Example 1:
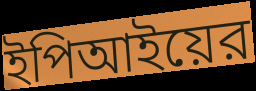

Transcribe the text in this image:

ইপিআইয়ের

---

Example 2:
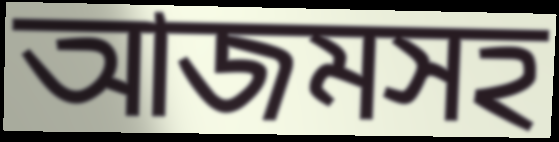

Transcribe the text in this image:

আজমসহ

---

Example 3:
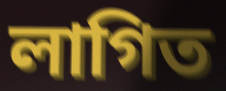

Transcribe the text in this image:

লাগিত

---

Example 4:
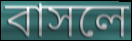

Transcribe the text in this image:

বাসলে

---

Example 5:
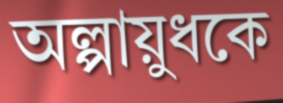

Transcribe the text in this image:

অল্পায়ুধকে